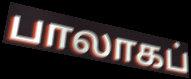
பாலாகப்